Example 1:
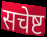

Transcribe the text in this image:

सचेष्ट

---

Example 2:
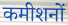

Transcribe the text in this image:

कमीशनों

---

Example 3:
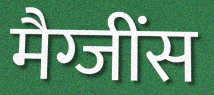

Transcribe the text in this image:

मैग्जींस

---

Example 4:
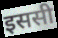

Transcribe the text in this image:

इससी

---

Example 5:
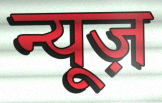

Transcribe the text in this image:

न्‍यूज़